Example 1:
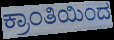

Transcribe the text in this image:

ಕ್ರಾಂತಿಯಿಂದ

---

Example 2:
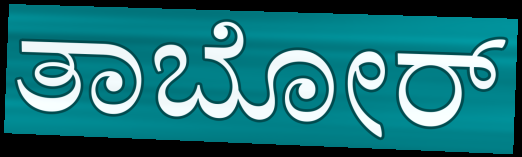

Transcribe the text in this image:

ತಾಬೋರ್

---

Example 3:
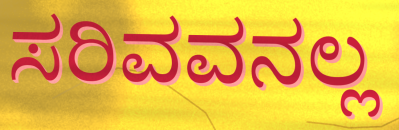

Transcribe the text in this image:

ಸರಿವವನಲ್ಲ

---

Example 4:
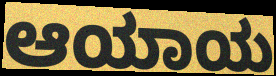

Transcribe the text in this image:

ಆಯಾಯ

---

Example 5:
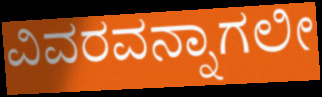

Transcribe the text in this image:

ವಿವರವನ್ನಾಗಲೀ